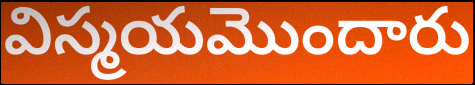
విస్మయమొందారు